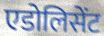
एडोलिसेंट